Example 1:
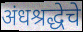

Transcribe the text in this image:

अंधश्रद्धेचे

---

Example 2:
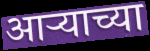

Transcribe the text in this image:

आऱ्याच्या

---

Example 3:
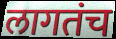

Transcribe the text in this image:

लागतंच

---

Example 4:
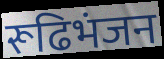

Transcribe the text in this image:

रूढिभंजन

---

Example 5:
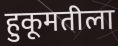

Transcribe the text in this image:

हुकूमतीला